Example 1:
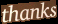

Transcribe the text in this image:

thanks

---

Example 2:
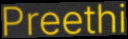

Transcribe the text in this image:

Preethi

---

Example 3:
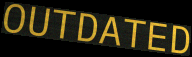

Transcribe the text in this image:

OUTDATED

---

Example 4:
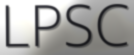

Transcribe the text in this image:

LPSC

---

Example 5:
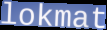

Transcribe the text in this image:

lokmat